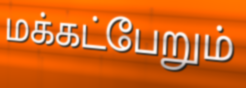
மக்கட்பேறும்